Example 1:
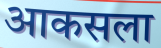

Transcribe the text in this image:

आकसला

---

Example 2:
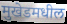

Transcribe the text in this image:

मुखेडमधील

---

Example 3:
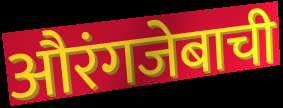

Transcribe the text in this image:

औरंगजेबाची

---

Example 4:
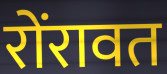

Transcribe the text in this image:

रोंरावत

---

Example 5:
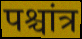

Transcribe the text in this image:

पश्चांत्र